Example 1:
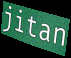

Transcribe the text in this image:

jitan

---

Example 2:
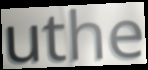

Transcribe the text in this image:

uthe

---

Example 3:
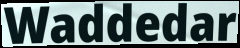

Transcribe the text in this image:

Waddedar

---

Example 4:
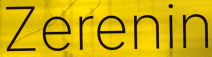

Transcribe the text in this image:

Zerenin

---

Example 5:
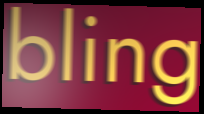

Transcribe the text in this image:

bling